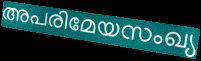
അപരിമേയസംഖ്യ